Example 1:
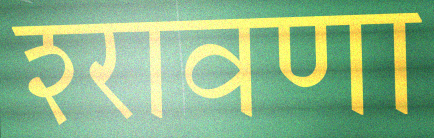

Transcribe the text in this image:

श्रावणा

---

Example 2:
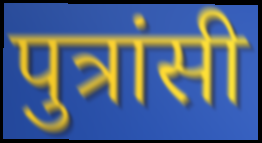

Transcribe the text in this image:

पुत्रांसी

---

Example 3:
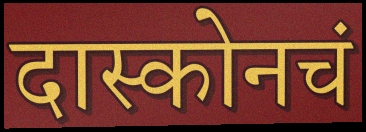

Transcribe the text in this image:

दास्कोनचं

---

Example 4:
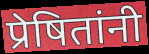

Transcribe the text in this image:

प्रेषितांनी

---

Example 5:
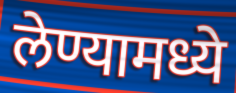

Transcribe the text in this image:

लेण्यामध्ये